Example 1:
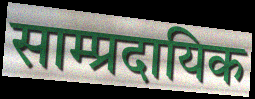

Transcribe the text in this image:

साम्प्रदायिक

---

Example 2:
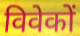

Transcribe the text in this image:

विवेकों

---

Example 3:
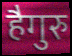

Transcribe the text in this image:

हैगुरु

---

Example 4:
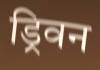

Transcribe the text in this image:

ड्रिवन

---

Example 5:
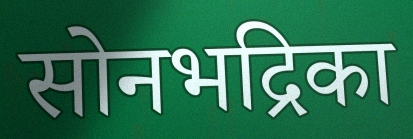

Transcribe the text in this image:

सोनभद्रिका